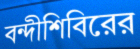
বন্দীশিবিরের